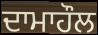
ਦਾਮਾਹੌਲ